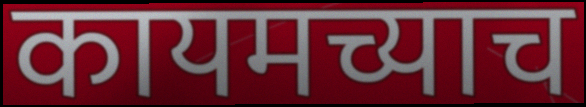
कायमच्याच